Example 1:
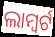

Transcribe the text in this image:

ଲାମ୍ବର୍ଟ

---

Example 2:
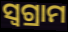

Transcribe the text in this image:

ସ୍ୱଗ୍ରାମ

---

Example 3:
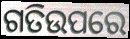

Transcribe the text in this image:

ଗତିଉପରେ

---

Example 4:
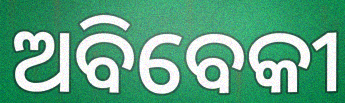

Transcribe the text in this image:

ଅବିବେକୀ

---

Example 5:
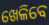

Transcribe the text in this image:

ଖେଳିବେ